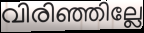
വിരിഞ്ഞില്ലേ